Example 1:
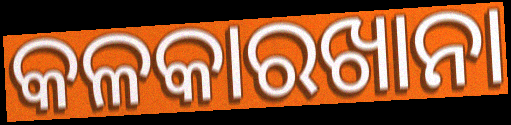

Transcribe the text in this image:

କଳକାରଖାନା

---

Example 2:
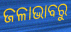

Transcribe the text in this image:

ଜଳାଭାବରୁ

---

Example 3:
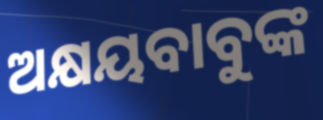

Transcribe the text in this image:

ଅକ୍ଷୟବାବୁଙ୍କ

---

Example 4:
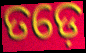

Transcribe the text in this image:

ତଡ଼େ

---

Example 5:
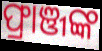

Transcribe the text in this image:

ଫ୍ରାଞ୍ଜଙ୍କ